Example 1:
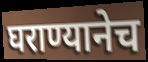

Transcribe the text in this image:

घराण्यानेच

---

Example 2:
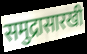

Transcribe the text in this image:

समुद्रासारखी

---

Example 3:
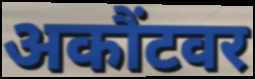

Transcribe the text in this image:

अकौंटवर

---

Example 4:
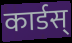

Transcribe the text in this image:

कार्डस्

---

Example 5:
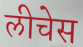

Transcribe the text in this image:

लीचेस